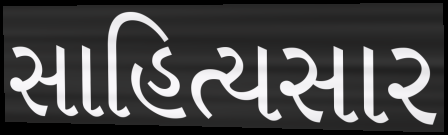
સાહિત્યસાર